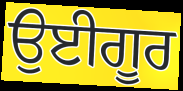
ਉਈਗੂਰ